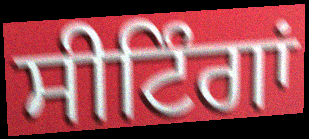
ਸੀਟਿੰਗਾਂ